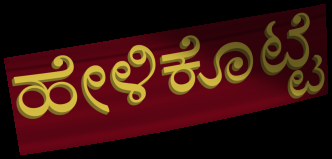
ಹೇಳಿಕೊಟ್ಟೆ